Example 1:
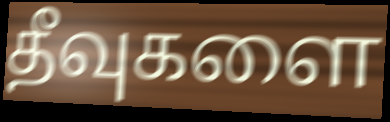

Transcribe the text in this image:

தீவுகளை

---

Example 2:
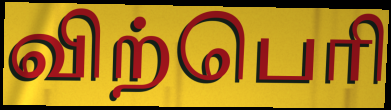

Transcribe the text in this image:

விற்பெரி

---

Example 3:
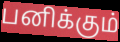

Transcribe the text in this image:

பனிக்கும்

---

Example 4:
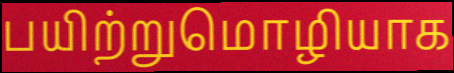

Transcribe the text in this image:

பயிற்றுமொழியாக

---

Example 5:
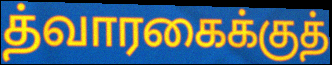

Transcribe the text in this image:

த்வாரகைக்குத்